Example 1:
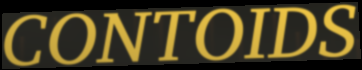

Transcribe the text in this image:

CONTOIDS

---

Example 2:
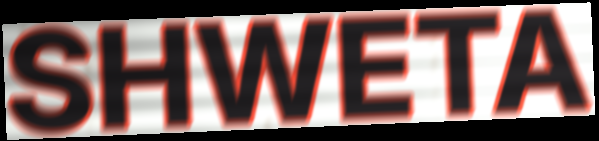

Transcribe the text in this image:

SHWETA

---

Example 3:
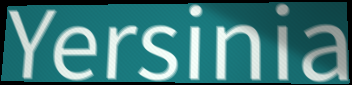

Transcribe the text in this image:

Yersinia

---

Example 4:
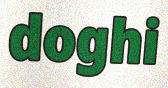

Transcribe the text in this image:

doghi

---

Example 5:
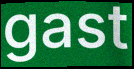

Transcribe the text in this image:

gast